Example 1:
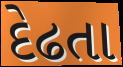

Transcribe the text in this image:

દેઢતા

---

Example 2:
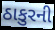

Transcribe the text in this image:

ઠાકુરની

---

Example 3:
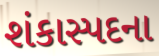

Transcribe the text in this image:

શંકાસ્પદના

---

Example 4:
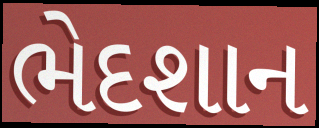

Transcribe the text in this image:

ભેદશાન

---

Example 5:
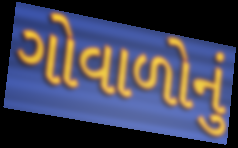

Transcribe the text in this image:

ગોવાળોનું